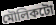
মৌলিকটো